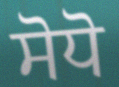
ਸੋਧੋ